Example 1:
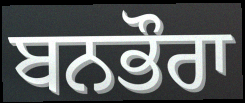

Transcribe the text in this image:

ਬਨਭੌਰਾ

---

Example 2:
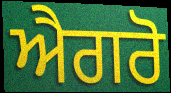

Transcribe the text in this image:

ਐਗਰੋ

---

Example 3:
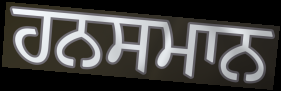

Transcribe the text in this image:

ਹਨਸਮਾਨ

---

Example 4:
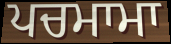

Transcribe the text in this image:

ਪਚਮਾਮਾ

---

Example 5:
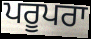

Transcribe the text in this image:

ਪਰੂਪਰਾ